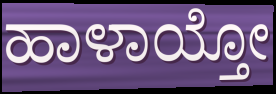
ಹಾಳಾಯ್ತೋ